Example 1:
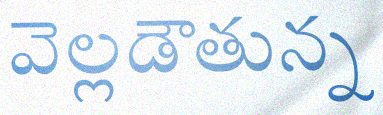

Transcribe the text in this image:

వెల్లడౌతున్న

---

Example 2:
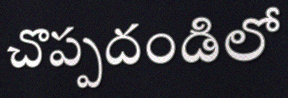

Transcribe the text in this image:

చొప్పదండిలో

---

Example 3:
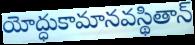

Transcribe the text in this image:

యోద్ధుకామానవస్థితాన్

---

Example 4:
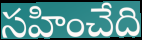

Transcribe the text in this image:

సహించేది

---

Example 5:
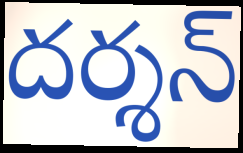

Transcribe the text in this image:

దర్శన్